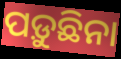
ପଡ଼ୁଛିନା